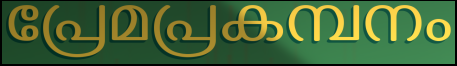
പ്രേമപ്രകമ്പനം